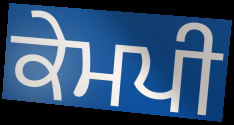
ਕੇਮਪੀ